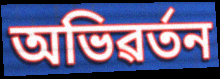
অভিৱৰ্তন